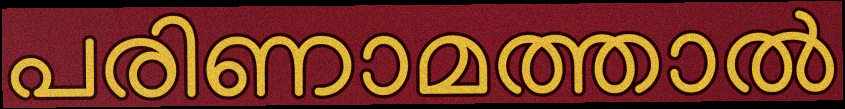
പരിണാമത്താൽ